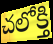
చలోక్తి